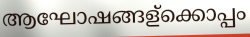
ആഘോഷങ്ങള്ക്കൊപ്പം